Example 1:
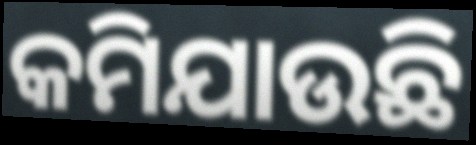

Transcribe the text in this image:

କମିଯାଉଛି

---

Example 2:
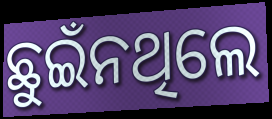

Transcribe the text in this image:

ଛୁଇଁନଥିଲେ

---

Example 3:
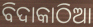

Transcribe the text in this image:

ବିଦାକାଠିଆ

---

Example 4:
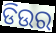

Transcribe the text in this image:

ଡିଉର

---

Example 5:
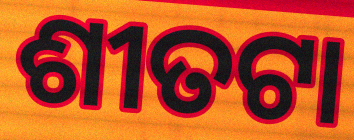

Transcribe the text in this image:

ଶୀତଟା